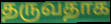
தருவதாக